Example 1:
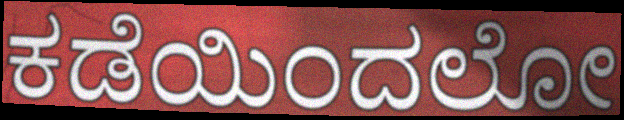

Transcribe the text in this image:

ಕಡೆಯಿಂದಲೋ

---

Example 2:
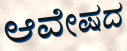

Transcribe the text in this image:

ಆವೇಷದ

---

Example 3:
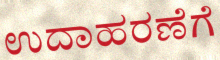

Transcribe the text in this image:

ಉದಾಹರಣೆಗೆ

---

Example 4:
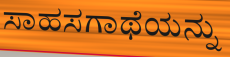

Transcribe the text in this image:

ಸಾಹಸಗಾಥೆಯನ್ನು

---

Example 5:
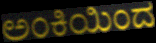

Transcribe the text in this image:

ಅಂಕಿಯಿಂದ